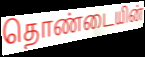
தொண்டையின்